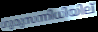
ഗുരുസന്നിധിയില്